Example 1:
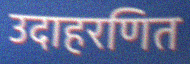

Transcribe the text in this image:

उदाहरणित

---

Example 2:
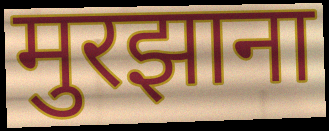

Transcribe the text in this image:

मुरझाना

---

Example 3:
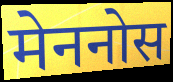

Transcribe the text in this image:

मेननोस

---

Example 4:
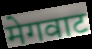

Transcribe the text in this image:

मेगवाट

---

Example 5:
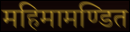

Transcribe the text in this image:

महिमामण्डित